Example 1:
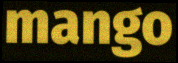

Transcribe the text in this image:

mango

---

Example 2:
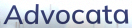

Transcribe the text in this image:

Advocata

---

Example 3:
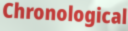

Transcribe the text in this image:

Chronological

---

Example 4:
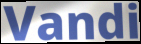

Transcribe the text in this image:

Vandi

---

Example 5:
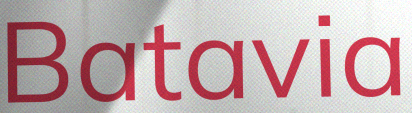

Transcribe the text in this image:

Batavia